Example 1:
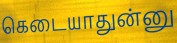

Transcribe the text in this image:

கெடையாதுன்னு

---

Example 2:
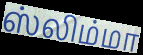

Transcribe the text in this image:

ஸ்லிம்மா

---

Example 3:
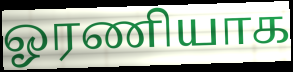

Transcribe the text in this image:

ஓரணியாக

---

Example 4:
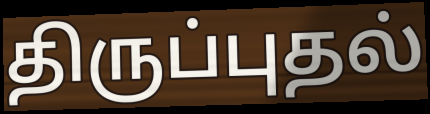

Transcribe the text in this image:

திருப்புதல்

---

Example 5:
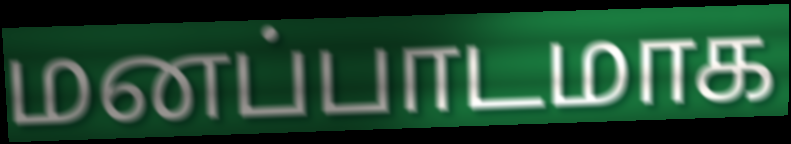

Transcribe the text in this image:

மனப்பாடமாக